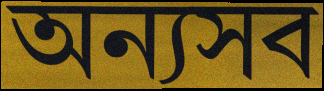
অন্যসব